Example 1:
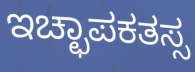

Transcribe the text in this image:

ಇಚ್ಛಾಪಕತಸ್ಸ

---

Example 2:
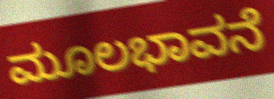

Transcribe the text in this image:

ಮೂಲಭಾವನೆ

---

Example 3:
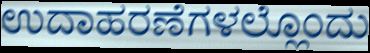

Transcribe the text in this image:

ಉದಾಹರಣೆಗಳಲ್ಲೊಂದು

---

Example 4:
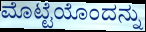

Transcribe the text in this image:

ಮೊಟ್ಟೆಯೊಂದನ್ನು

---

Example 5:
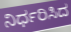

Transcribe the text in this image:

ನಿರ್ಧರಿಸಿದ